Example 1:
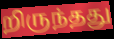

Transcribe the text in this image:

றிருந்தது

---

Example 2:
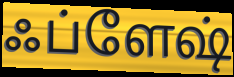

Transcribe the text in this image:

ஃப்ளேஷ்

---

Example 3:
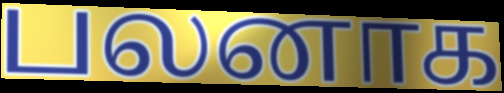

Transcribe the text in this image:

பலனாக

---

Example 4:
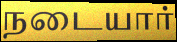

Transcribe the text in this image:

நடையார்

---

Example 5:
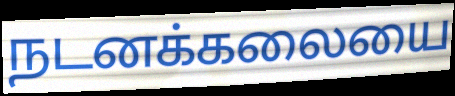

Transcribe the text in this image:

நடனக்கலையை